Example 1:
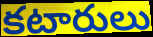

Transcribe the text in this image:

కటారులు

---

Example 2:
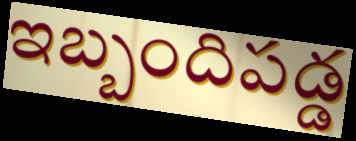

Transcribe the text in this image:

ఇబ్బందిపడ్డ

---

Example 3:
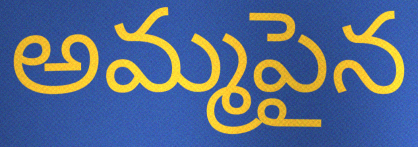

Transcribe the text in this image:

అమ్మపైన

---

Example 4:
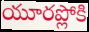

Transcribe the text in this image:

యూరప్లోకి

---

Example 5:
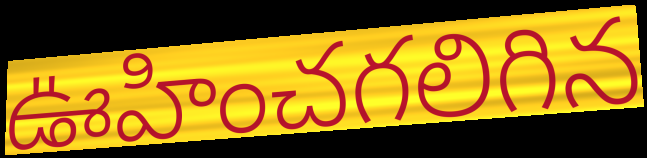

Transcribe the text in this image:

ఊహించగలిగిన